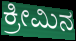
ಕ್ರೀಮಿನ